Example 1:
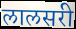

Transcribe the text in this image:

लालसरी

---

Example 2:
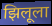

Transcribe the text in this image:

झिलूला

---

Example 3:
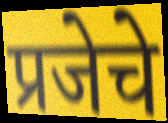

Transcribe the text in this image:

प्रजेचे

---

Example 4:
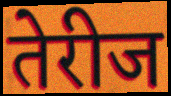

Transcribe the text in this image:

तेरीज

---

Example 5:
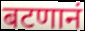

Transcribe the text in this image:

बटणानं